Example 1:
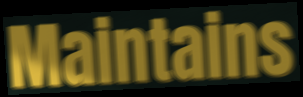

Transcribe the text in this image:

Maintains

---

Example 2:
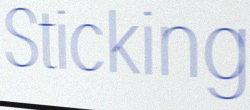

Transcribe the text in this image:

Sticking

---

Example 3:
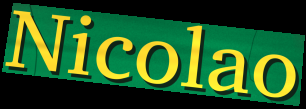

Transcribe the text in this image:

Nicolao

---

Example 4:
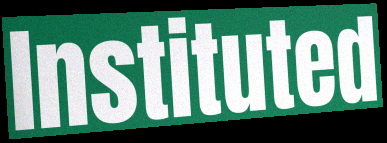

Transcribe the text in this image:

Instituted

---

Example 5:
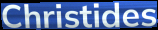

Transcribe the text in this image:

Christides